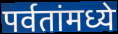
पर्वतांमध्ये